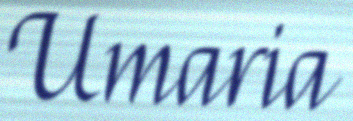
Umaria